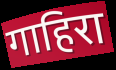
गाहिरा